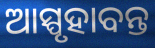
ଆସ୍ପୃହାବନ୍ତ